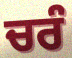
ਚਰੰ